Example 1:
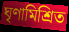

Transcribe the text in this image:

ঘৃণামিশ্রিত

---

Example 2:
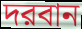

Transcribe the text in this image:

দরবান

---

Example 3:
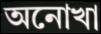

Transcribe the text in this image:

অনোখা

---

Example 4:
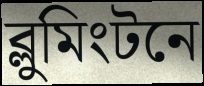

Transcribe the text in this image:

ব্লুমিংটনে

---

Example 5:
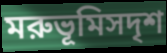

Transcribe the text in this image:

মরুভূমিসদৃশ